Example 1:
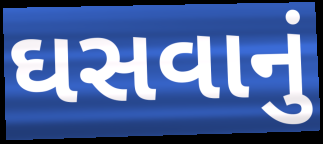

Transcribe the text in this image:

ઘસવાનું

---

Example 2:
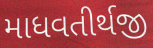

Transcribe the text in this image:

માધવતીર્થજી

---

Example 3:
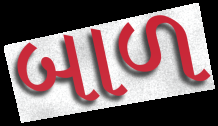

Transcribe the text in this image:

બાળ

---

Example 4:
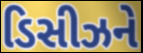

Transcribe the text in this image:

ડિસીઝને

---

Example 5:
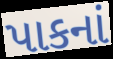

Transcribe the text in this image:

પાકનાં